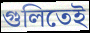
গুলিতেই